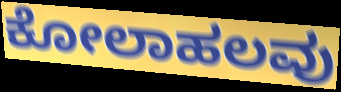
ಕೋಲಾಹಲವು